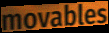
movables